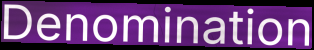
Denomination